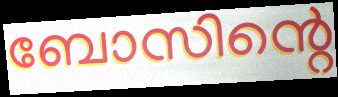
ബോസിന്റെ